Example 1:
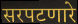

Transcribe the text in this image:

सरपटणारे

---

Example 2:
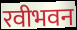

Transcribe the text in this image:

रवीभवन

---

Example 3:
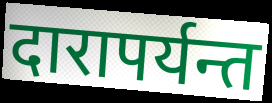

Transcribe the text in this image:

दारापर्यन्त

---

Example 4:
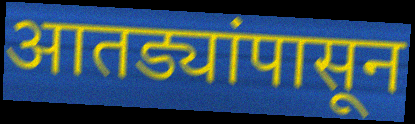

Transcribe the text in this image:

आतड्यांपासून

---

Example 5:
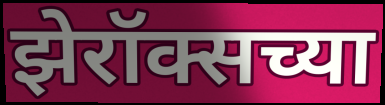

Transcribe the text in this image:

झेरॉक्सच्या